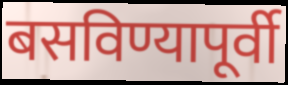
बसविण्यापूर्वी